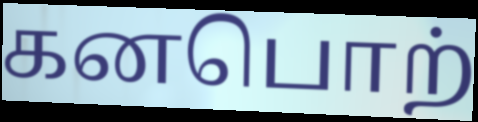
கனபொற்